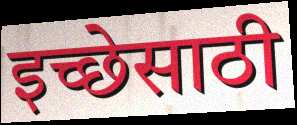
इच्छेसाठी